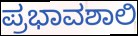
ಪ್ರಭಾವಶಾಲಿ